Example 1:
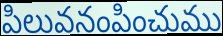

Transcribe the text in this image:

పిలువనంపించుము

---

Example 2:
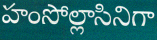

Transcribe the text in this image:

హంసోల్లాసినిగా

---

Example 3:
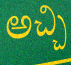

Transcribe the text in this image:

అచ్చి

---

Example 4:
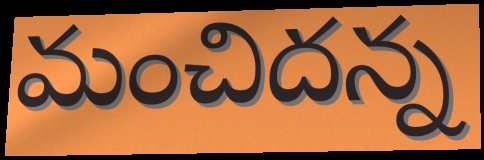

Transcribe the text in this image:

మంచిదన్న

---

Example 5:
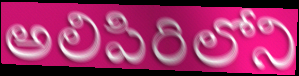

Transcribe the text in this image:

అలిపిరిలోని